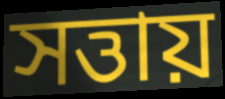
সত্তায়